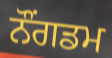
ਨੌਂਗਡਮ